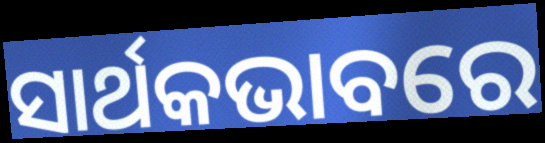
ସାର୍ଥକଭାବରେ